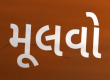
મૂલવો